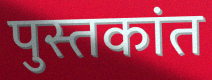
पुस्तकांत